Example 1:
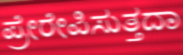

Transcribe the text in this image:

ಪ್ರೇರೇಪಿಸುತ್ತದಾ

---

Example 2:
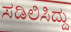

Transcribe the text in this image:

ಸಡಿಲಿಸಿದ್ದು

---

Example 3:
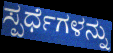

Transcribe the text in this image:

ಸ್ಪರ್ಧೆಗಳನ್ನು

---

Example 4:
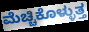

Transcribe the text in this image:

ಮೆಚ್ಚಿಕೊಳ್ಳುತ್ತ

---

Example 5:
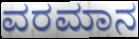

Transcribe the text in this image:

ವರಮಾನ